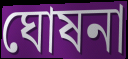
ঘোষনা